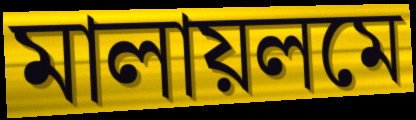
মালায়লমে